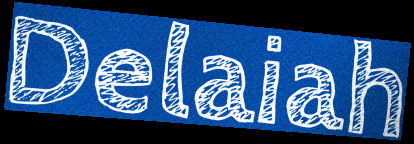
Delaiah